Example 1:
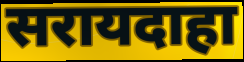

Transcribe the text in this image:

सरायदाहा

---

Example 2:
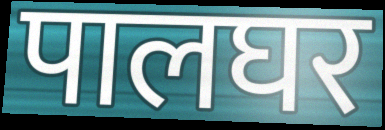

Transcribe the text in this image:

पालघर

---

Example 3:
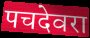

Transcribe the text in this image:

पचदेवरा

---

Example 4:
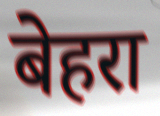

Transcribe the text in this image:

बेहरा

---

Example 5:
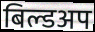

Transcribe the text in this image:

बिल्डअप